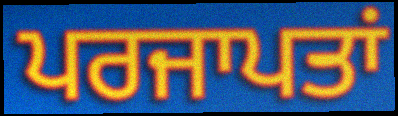
ਪਰਜਾਪਤਾਂ